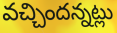
వచ్చిందన్నట్లు